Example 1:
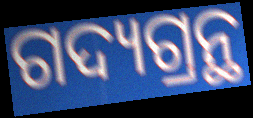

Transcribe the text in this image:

ଗଦ୍ୟଗ୍ରନ୍ଥ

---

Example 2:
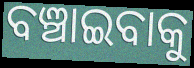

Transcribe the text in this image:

ବଞ୍ଚାଇବାକୁ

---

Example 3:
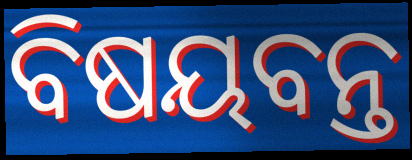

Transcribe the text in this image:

ବିଷୟବନ୍ତ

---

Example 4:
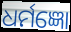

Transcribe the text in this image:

ଧର୍ମଜ୍ଞୋ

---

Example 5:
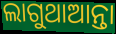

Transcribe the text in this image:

ଲାଗୁଥାଆନ୍ତା